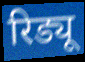
रिड्यू